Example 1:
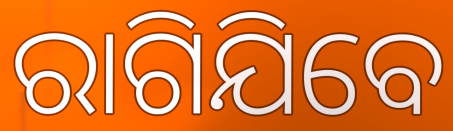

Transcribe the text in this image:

ରାଗିଯିବେ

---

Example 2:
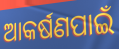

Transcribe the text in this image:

ଆକର୍ଷଣପାଇଁ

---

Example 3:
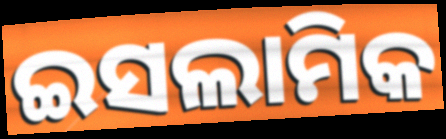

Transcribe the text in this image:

ଇସଲାମିକ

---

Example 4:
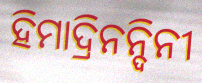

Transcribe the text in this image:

ହିମାଦ୍ରିନନ୍ଦିନୀ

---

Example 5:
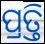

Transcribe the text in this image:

ପ୍ରତ୍ତି